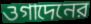
ওগাদেনের